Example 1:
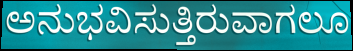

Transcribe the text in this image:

ಅನುಭವಿಸುತ್ತಿರುವಾಗಲೂ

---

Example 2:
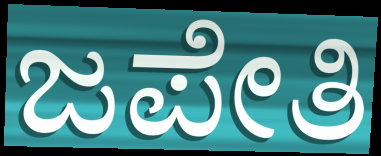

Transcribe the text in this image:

ಜಪೇತಿ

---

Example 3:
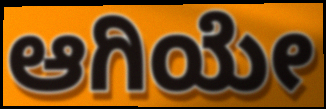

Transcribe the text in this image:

ಆಗಿಯೇ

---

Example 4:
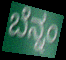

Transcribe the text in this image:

ಬೆನ್ನಂ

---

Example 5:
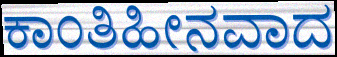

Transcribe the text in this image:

ಕಾಂತಿಹೀನವಾದ